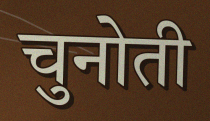
चुनोती